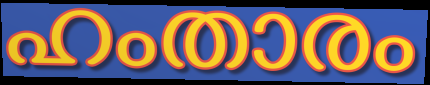
ഹംതാരം